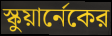
স্কুয়ার্নেকের